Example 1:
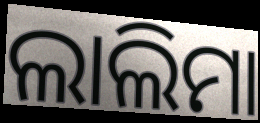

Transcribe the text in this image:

ଲାଲିମା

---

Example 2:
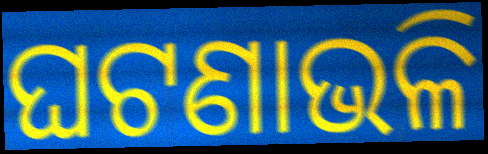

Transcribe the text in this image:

ଘଟଣାଭଳି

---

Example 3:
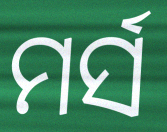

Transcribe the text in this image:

ମର୍ସ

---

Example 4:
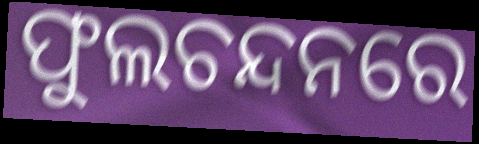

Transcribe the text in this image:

ଫୁଲଚନ୍ଦନରେ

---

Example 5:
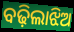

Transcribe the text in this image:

ବଢ଼ିଲାଝିଅ